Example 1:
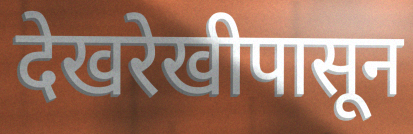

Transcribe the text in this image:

देखरेखीपासून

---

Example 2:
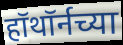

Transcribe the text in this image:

हॉथॉर्नच्या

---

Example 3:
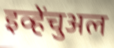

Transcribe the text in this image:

इव्हेंचुअल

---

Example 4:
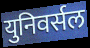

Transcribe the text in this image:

युनिवर्सल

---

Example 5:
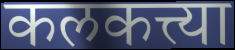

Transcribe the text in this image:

कलकत्त्या